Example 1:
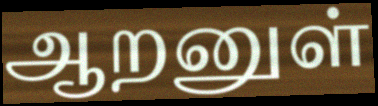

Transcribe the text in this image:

ஆறனுள்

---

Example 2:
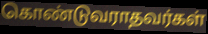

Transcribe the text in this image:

கொண்டுவராதவர்கள்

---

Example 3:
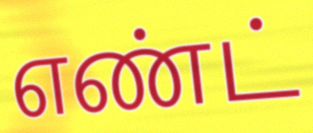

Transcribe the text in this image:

எண்ட்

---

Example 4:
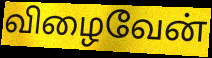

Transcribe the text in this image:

விழைவேன்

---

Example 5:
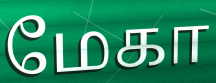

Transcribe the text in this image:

மேகா